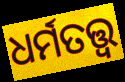
ଧର୍ମତତ୍ତ୍ଵ